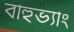
বাহুভ্যাং